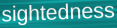
sightedness